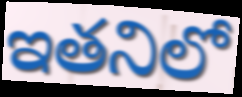
ఇతనిలో